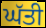
ਘੱਤੀ